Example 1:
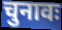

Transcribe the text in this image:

चुनावः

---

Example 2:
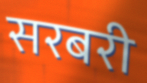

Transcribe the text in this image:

सरबरी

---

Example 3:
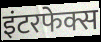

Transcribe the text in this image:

इंटरफेक्स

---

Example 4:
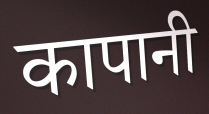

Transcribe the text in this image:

कापानी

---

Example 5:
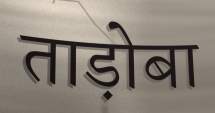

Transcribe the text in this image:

ताड़ोबा